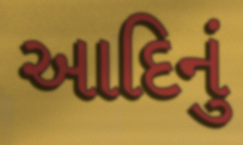
આદિનું